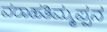
ವರಾಹತಿಮ್ಮಪ್ಪನ